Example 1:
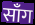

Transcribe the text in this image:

साँग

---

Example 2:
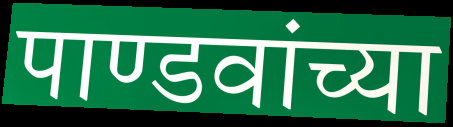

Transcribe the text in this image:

पाण्डवांच्या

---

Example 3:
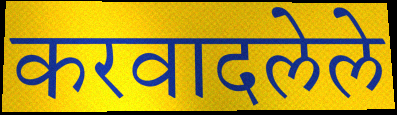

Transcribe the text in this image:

करवादलेले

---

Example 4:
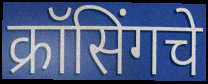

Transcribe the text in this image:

क्रॉसिंगचे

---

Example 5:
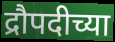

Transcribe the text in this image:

द्रौपदीच्या